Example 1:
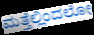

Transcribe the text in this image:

ಮತ್ತೆಲ್ಲಿಂದಲೋ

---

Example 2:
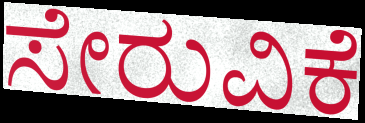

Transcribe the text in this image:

ಸೇರುವಿಕೆ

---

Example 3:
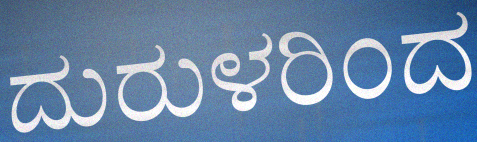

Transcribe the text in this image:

ದುರುಳರಿಂದ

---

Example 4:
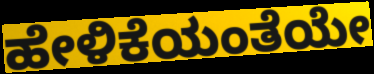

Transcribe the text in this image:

ಹೇಳಿಕೆಯಂತೆಯೇ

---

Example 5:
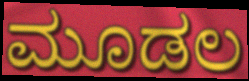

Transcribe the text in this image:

ಮೂಡಲ